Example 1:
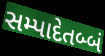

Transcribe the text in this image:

સમ્પાદેતબ્બં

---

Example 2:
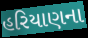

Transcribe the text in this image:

હરિયાણના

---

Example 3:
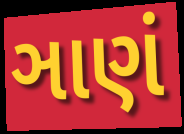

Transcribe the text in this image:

ઞાણં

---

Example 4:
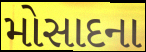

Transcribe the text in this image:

મોસાદના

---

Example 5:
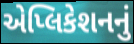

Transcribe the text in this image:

એપ્લિકેશનનું